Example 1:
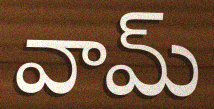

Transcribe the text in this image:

వామ్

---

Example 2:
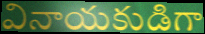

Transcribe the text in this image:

వినాయకుడిగా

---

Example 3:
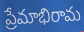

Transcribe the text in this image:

ప్రేమాభిరామ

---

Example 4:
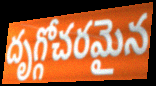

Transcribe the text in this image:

దృగ్గోచరమైన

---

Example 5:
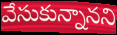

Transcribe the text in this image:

వేసుకున్నానని